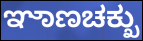
ಞಾಣಚಕ್ಖು